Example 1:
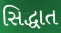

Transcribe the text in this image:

સિદ્ધાત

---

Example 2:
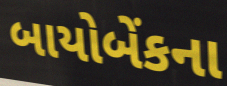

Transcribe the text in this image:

બાયોબેંકના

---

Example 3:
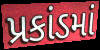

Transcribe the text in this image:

પ્રકાંડમાં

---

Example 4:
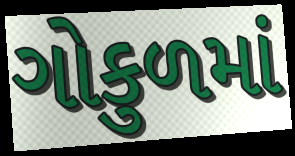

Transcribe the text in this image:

ગોકુળમાં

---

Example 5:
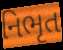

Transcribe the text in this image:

નિભૃત